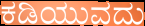
ಕಡಿಯುವದು